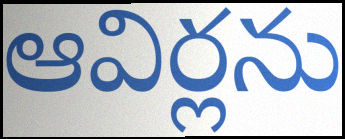
ఆవిర్లను